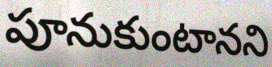
పూనుకుంటానని